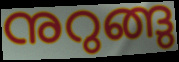
നുറുങ്ങു